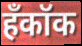
हँकॉक